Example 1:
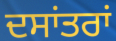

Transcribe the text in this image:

ਦਸਾਂਤਰਾਂ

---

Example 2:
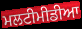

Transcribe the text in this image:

ਮਲਟੀਮੀਡੀਆ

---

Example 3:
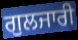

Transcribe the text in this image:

ਗੁਲਜਾਰੀ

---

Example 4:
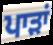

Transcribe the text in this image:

ਪਾੜਾਂ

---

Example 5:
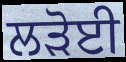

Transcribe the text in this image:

ਲੜੋਈ